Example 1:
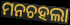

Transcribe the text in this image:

ମନଚହଲା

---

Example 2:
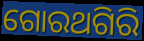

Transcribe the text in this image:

ଗୋରଥଗିରି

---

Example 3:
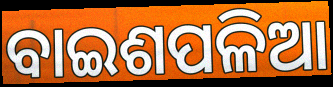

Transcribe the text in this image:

ବାଇଶପଳିଆ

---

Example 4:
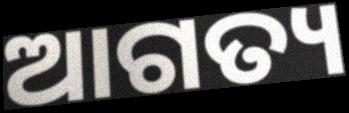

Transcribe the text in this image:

ଆଗତ୍ୟ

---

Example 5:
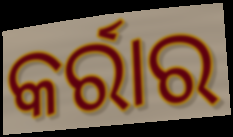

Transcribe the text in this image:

କର୍ରାର